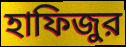
হাফিজুর